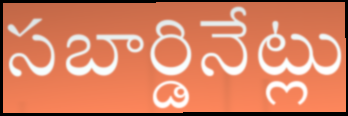
సబార్డినేట్లు